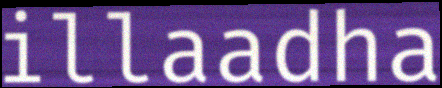
illaadha